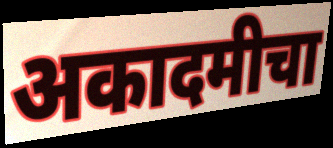
अकादमीचा